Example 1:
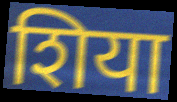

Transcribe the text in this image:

शिया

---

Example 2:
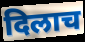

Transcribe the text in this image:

दिलाच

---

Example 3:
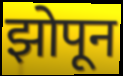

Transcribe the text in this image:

झोपून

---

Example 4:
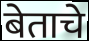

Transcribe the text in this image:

बेताचे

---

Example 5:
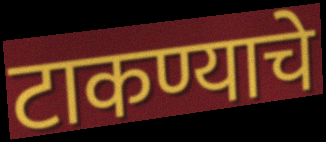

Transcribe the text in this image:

टाकण्याचे